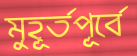
মুহূর্তপূর্বে